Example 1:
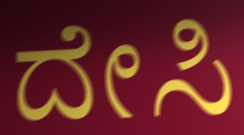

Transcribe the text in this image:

ದೇಸಿ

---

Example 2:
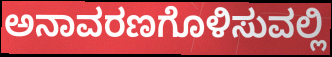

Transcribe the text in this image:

ಅನಾವರಣಗೊಳಿಸುವಲ್ಲಿ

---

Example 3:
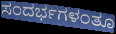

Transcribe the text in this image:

ಸಂದರ್ಭಗಳಂತೂ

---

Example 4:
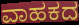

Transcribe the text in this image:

ವಾಹಕದ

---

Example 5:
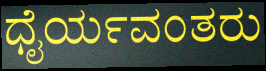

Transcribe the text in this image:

ಧೈರ್ಯವಂತರು